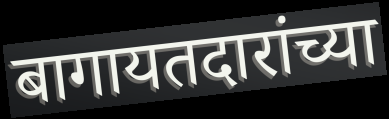
बागायतदारांच्या